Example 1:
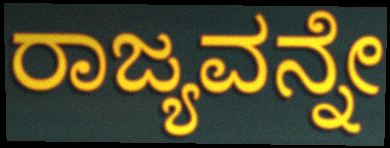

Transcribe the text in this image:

ರಾಜ್ಯವನ್ನೇ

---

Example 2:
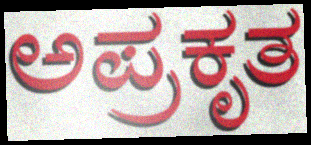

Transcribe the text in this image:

ಅಪ್ರಕೃತ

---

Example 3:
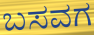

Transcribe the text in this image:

ಬಸವಗ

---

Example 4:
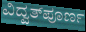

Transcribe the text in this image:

ವಿದ್ವತ್‌ಪೂರ್ಣ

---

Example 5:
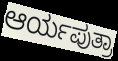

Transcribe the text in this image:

ಆರ್ಯಪುತ್ರಾ